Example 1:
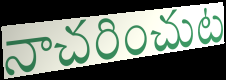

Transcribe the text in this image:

నాచరించుట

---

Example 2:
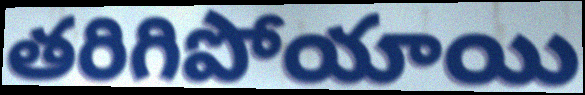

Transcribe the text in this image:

తరిగిపోయాయి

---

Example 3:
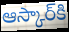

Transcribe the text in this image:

ఆస్కార్‌కి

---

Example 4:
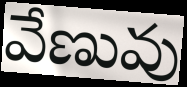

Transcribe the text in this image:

వేణువు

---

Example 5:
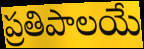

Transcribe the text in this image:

ప్రతిపాలయే